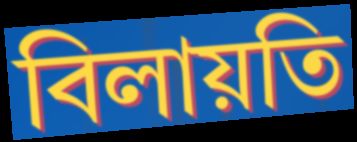
বিলায়তি